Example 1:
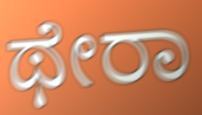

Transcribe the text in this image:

ಥೇರಾ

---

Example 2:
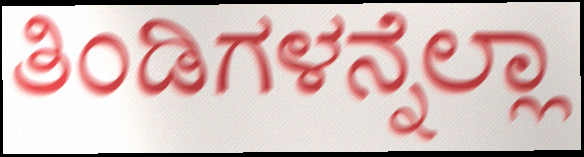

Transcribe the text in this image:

ತಿಂಡಿಗಳನ್ನೆಲ್ಲಾ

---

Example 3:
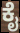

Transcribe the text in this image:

ಕೈ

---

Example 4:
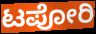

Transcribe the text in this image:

ಟಪೋರಿ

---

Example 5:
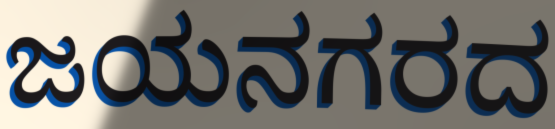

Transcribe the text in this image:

ಜಯನಗರದ